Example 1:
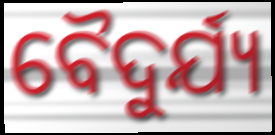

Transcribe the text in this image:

ବୈଦୁର୍ଯ୍ୟ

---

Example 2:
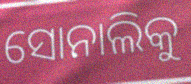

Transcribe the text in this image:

ସୋନାଲିକୁ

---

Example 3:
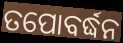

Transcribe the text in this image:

ତପୋବର୍ଦ୍ଧନ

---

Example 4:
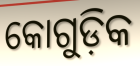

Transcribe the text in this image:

କୋଗୁଡ଼ିକ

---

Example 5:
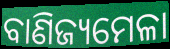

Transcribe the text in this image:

ବାଣିଜ୍ୟମେଳା